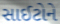
સાઈટોને